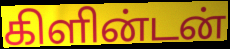
கிளின்டன்